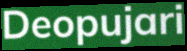
Deopujari